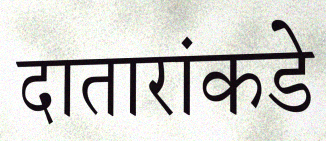
दातारांकडे